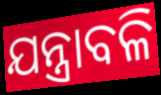
ଯନ୍ତ୍ରାବଳି